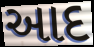
આદ